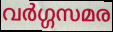
വർഗ്ഗസമര